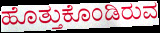
ಹೊತ್ತುಕೊಂಡಿರುವ